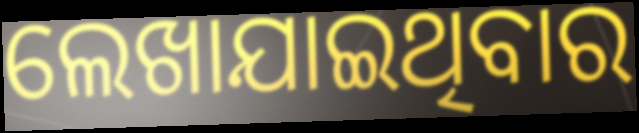
ଲେଖାଯାଇଥିବାର